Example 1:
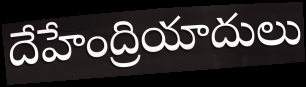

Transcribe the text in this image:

దేహేంద్రియాదులు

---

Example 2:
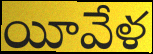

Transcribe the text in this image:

యీవేళ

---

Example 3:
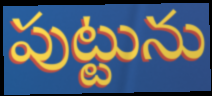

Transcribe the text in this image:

పుట్టును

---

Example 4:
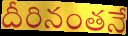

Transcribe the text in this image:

దీరినంతనే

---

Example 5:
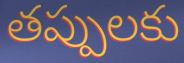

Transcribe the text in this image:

తప్పులకు